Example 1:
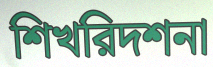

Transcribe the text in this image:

শিখরিদশনা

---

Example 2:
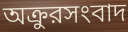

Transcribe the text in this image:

অক্রুরসংবাদ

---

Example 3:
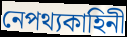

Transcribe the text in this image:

নেপথ্যকাহিনী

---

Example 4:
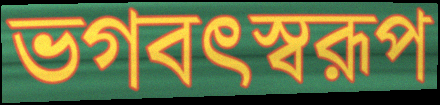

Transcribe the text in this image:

ভগবৎস্বরূপ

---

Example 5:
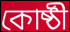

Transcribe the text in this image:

কোষ্ঠী